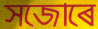
সজোৰে